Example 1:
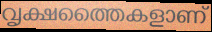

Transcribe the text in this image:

വൃക്ഷത്തൈകളാണ്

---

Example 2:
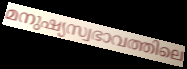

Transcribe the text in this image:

മനുഷ്യസ്വഭാവത്തിലെ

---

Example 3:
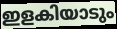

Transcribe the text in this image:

ഇളകിയാടും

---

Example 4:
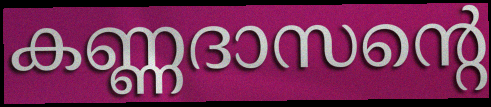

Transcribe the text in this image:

കണ്ണദാസന്റെ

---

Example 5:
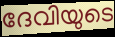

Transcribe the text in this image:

ദേവിയുടെ